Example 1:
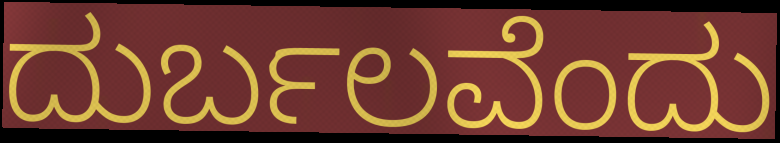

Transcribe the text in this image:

ದುರ್ಬಲವೆಂದು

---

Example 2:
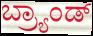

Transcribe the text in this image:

ಬ್ರ್ಯಾಂಡ್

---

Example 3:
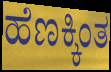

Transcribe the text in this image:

ಹೆಣಕ್ಕಿಂತ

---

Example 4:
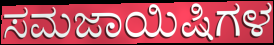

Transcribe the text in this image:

ಸಮಜಾಯಿಷಿಗಳ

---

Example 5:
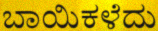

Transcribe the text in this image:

ಬಾಯಿಕಳೆದು